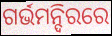
ଗର୍ଭମନ୍ଦିରରେ